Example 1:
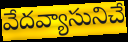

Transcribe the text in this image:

వేదవ్యాసునిచే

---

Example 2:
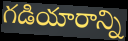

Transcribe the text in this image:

గడియారాన్ని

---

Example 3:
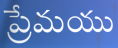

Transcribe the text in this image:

ప్రేమయు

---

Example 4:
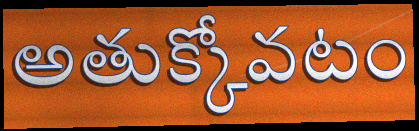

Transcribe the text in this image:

అతుక్కోవటం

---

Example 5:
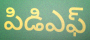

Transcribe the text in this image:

పిడిఎఫ్